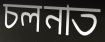
চলনাত